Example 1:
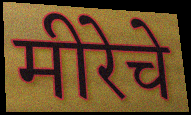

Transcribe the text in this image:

मीरेचे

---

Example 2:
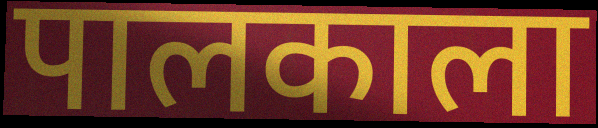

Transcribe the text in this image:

पालकाला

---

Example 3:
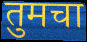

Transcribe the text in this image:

तुमचा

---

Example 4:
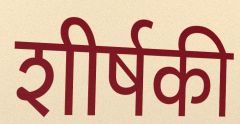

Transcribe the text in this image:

शीर्षकी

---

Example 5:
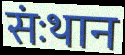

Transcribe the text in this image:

संःथान